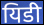
यिडी